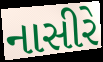
નાસીરે